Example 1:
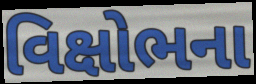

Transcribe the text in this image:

વિક્ષોભના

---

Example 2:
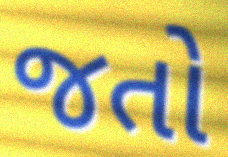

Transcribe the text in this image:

જતો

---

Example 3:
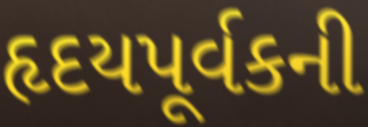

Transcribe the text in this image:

હૃદયપૂર્વકની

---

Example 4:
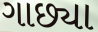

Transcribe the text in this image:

ગાછ્યા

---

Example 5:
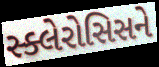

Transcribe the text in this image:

સ્ક્લેરોસિસને